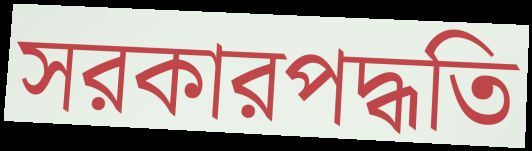
সরকারপদ্ধতি